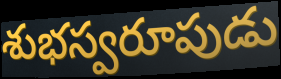
శుభస్వరూపుడు